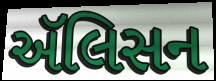
ઍલિસન